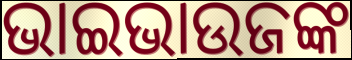
ଭାଇଭାଉଜଙ୍କ